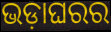
ଭଡ଼ାଘରର